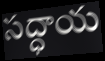
సద్ధాయ